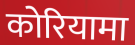
कोरियामा